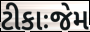
ટીકાઃજેમ